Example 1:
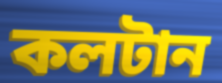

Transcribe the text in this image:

কলটান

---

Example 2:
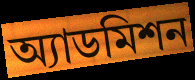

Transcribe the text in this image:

অ্যাডমিশন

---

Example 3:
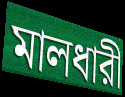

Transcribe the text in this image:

মালধারী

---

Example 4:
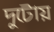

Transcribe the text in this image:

দুটোয়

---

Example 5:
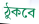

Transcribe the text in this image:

ঠুকবে